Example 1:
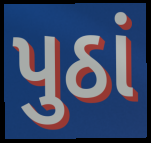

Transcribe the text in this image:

પુઠાં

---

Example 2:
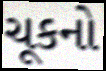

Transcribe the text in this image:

ચૂકનો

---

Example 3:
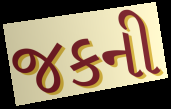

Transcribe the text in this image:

જકની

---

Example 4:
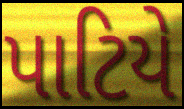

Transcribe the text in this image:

પાટિયે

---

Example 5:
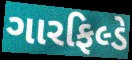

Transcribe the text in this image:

ગારફિલ્ડે